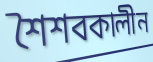
শৈশবকালীন